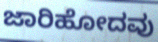
ಜಾರಿಹೋದವು